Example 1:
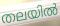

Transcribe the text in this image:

തലയിൽ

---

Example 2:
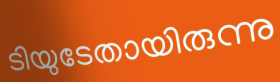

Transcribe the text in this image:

ടിയുടേതായിരുന്നു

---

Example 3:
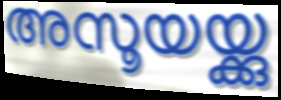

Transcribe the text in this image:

അസൂയയ്ക്കു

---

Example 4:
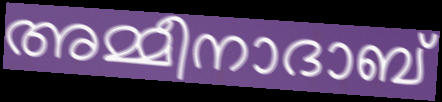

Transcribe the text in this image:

അമ്മീനാദാബ്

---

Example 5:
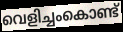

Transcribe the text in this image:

വെളിച്ചംകൊണ്ട്